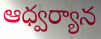
ఆధ్వర్యాన